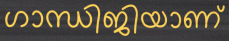
ഗാന്ധിജിയാണ്